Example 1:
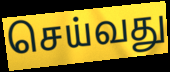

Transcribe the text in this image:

செய்வது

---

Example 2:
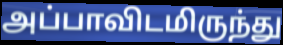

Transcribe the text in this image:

அப்பாவிடமிருந்து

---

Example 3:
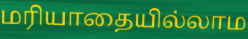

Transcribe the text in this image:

மரியாதையில்லாம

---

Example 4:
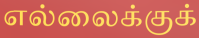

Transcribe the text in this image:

எல்லைக்குக்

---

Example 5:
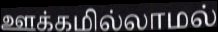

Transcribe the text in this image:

ஊக்கமில்லாமல்